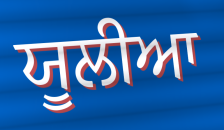
ਯੂਲੀਆ